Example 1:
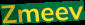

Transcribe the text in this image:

Zmeev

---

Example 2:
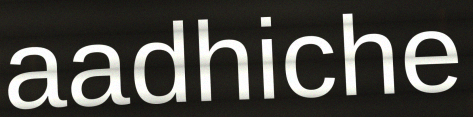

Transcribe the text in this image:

aadhiche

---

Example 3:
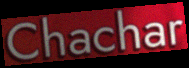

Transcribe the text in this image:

Chachar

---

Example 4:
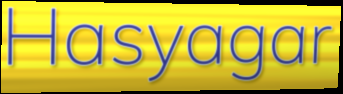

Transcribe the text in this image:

Hasyagar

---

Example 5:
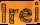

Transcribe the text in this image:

Irei